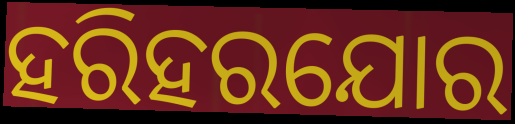
ହରିହରଯୋର